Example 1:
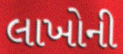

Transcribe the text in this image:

લાખોની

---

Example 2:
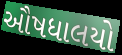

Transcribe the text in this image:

ઔષધાલયો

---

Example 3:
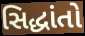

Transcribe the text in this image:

સિદ્ધાંતો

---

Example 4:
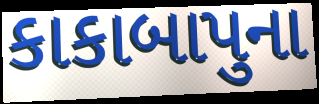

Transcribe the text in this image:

કાકાબાપુના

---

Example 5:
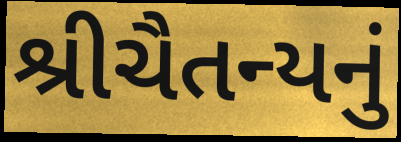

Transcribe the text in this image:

શ્રીચૈતન્યનું